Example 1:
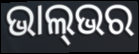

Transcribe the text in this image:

ଭାଲ୍‌ଭର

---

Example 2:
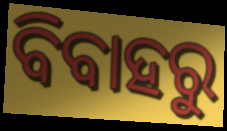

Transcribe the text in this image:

ବିବାହରୁ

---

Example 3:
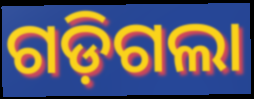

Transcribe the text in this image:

ଗଡ଼ିଗଲା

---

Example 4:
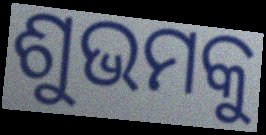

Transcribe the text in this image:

ଶୁଭମକୁ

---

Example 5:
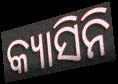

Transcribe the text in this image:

କ୍ୟାସିନି